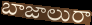
బాజాలురా